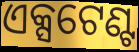
ଏକ୍ସଟେଣ୍ଟ